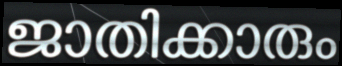
ജാതിക്കാരും